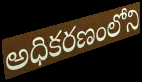
అధికరణంలోని